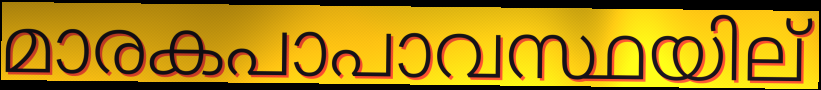
മാരകപാപാവസ്ഥയില്